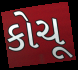
કોચૂ